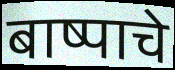
बाष्पाचे